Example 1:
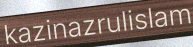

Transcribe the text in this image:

kazinazrulislam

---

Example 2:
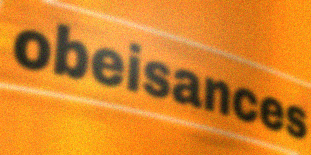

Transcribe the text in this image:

obeisances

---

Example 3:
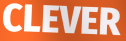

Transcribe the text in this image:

CLEVER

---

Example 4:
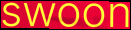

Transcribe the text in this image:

swoon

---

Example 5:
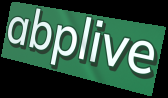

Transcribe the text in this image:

abplive